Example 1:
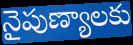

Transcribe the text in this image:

నైపుణ్యాలకు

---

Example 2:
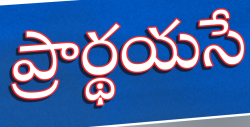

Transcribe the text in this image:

ప్రార్థయసే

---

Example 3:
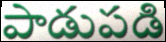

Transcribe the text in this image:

పాడుపడి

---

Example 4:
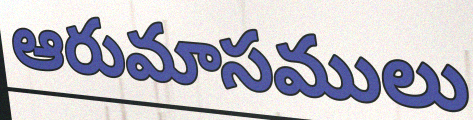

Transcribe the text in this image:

ఆరుమాసములు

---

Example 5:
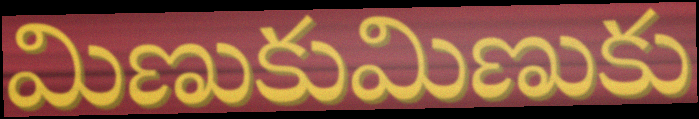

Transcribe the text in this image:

మిణుకుమిణుకు